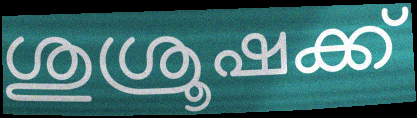
ശുശ്രൂഷക്ക്